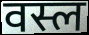
वस्ल